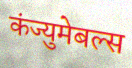
कंज्युमेबल्स